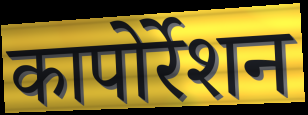
कापोर्रेशन